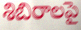
శిబిరాలపై